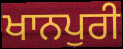
ਖਾਨਪੁਰੀ